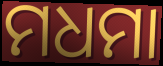
ମଧମା